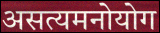
असत्यमनोयोग